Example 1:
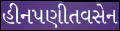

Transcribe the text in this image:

હીનપણીતવસેન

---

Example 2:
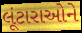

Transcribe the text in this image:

લૂંટારાઓને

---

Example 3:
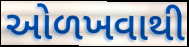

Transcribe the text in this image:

ઓળખવાથી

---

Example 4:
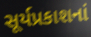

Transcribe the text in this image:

સૂર્યપ્રકાશનાં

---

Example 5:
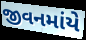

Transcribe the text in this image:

જીવનમાંયે